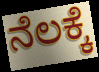
ನೆಲಕ್ಕೆ